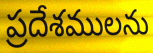
ప్రదేశములను